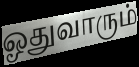
ஓதுவாரும்